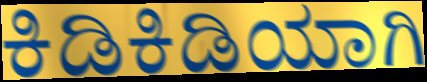
ಕಿಡಿಕಿಡಿಯಾಗಿ